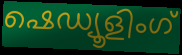
ഷെഡ്യൂളിംഗ്